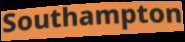
Southampton